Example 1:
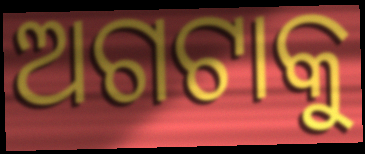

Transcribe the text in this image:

ଅଗଟାକୁ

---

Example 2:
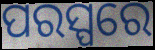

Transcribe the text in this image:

ପରସ୍ପରେ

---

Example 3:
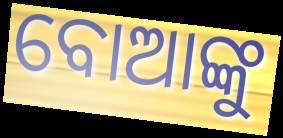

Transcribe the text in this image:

ବୋଆଙ୍କୁ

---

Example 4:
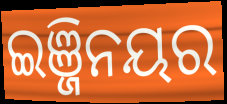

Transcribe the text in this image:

ଇଞ୍ଜିନୟର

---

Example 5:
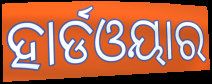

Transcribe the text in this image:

ହାର୍ଡଓୟାର